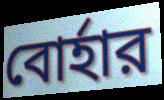
বোর্হার